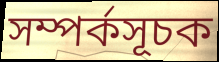
সম্পর্কসূচক